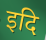
इदि